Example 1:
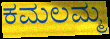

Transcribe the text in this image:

ಕಮಲಮ್ಮ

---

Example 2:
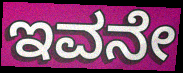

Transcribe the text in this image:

ಇವನೇ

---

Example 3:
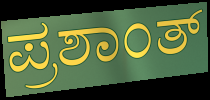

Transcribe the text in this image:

ಪ್ರಶಾಂತ್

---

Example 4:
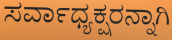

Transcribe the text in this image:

ಸರ್ವಾಧ್ಯಕ್ಷರನ್ನಾಗಿ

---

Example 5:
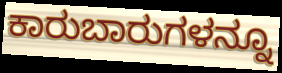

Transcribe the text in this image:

ಕಾರುಬಾರುಗಳನ್ನೂ